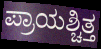
ಪ್ರಾಯಶ್ಚಿತ್ತ